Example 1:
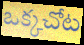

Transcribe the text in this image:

ఒక్కచోట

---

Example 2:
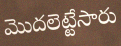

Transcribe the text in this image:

మొదలెట్టేసారు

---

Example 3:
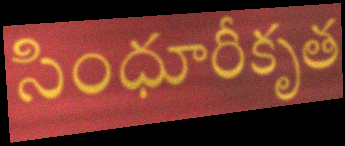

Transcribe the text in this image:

సింధూరీకృత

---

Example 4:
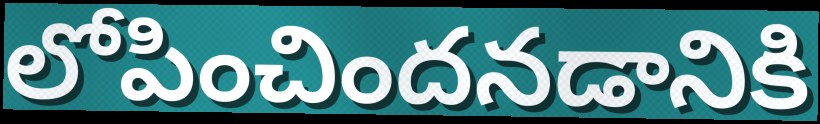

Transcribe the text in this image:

లోపించిందనడానికి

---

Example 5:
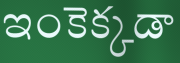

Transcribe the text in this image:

ఇంకెక్కడా